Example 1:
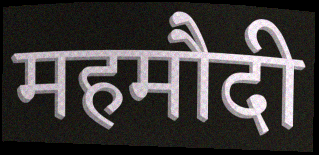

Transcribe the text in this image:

महमौदी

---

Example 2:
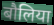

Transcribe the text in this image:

बौलिया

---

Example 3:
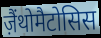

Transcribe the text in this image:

ज़ैंथोमैटोसिस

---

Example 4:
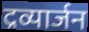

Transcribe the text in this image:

द्रव्यार्जन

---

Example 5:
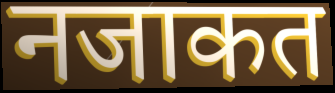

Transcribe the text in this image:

नजाकत